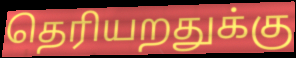
தெரியறதுக்கு